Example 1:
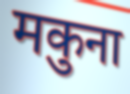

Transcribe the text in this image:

मकुना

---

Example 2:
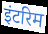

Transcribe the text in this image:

इंटरिम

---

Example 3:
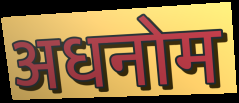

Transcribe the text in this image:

अधनोम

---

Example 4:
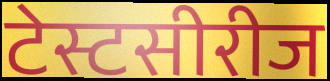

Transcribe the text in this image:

टेस्टसीरीज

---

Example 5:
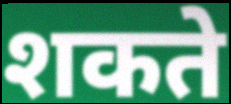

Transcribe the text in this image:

शकते